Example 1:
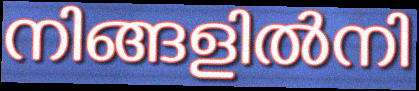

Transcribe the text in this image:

നിങ്ങളിൽനി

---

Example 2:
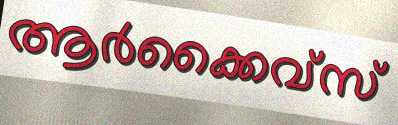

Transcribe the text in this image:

ആർക്കൈവ്സ്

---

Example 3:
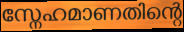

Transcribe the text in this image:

സ്നേഹമാണതിന്റെ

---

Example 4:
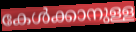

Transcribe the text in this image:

കേൾക്കാനുള്ള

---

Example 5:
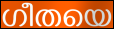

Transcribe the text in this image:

ഗീതയെ